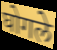
घोगले